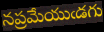
నప్రమేయుఁడగు